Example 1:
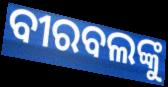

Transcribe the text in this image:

ବୀରବଲଙ୍କୁ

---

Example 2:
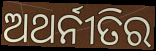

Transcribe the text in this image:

ଅଥର୍ନୀତିର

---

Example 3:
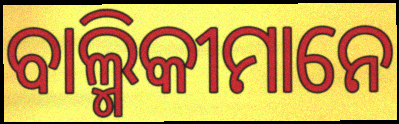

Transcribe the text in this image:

ବାଲ୍ମିକୀମାନେ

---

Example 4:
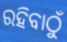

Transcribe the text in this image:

ରହିବାଠୁଁ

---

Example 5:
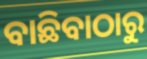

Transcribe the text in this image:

ବାଛିବାଠାରୁ